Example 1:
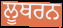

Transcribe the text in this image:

ਲੂਥਰਨ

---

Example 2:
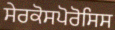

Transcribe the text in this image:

ਸੇਰਕੋਸਪੋਰੋਸਿਸ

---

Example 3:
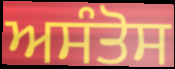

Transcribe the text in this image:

ਅਸੰਤੋਸ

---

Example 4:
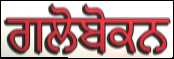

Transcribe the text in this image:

ਗਲੋਬੋਕਨ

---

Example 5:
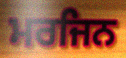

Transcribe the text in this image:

ਮਰਜਿਨ